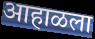
आहाळला